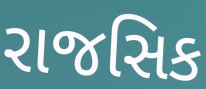
રાજસિક